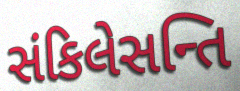
સંકિલેસન્તિ